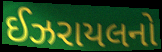
ઈઝરાયલનો